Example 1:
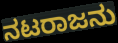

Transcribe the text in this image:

ನಟರಾಜನು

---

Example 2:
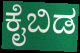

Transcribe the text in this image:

ಕೈಬಿಡ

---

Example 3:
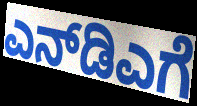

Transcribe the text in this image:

ಎನ್‌ಡಿಎಗೆ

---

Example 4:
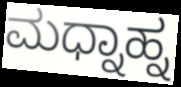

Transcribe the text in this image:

ಮಧ್ನಾಹ್ನ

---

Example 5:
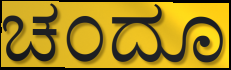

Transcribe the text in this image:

ಚಂದೂ